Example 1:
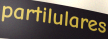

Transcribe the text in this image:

partilulares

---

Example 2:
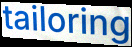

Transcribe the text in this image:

tailoring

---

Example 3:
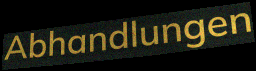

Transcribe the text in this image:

Abhandlungen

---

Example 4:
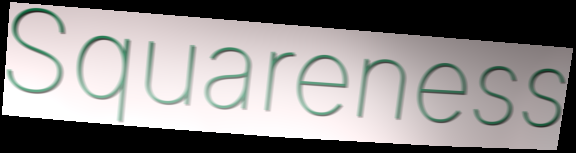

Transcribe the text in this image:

Squareness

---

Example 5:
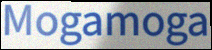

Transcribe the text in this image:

Mogamoga